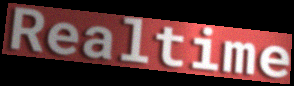
Realtime